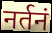
नर्तनं